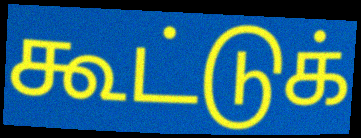
கூட்டுக்